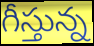
గీస్తున్న